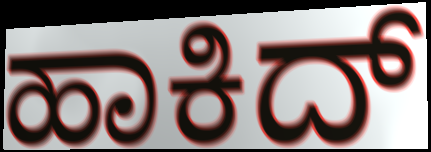
ಹಾಕಿದ್